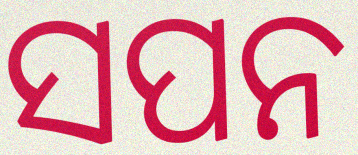
ସପନ